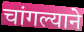
चांगल्याने